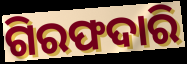
ଗିରଫଦାରି